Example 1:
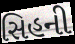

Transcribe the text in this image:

સિહની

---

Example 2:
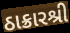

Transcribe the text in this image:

ઠાક્રારશ્રી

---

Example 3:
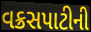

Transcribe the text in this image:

વક્રસપાટીની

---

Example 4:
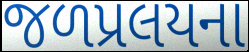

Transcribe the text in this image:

જળપ્રલયના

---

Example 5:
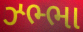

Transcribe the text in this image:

ઝ્ભ્ભા